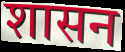
शासन